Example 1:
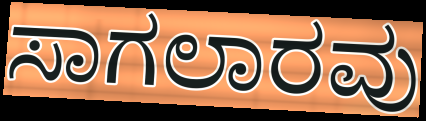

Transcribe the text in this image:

ಸಾಗಲಾರವು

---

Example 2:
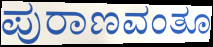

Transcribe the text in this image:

ಪುರಾಣವಂತೂ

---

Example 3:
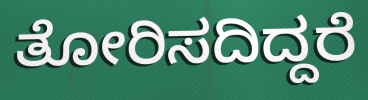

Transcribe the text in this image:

ತೋರಿಸದಿದ್ದರೆ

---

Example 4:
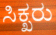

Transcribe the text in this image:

ಸಿಕ್ಖರು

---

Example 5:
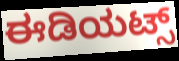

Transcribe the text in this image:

ಈಡಿಯಟ್ಸ್